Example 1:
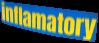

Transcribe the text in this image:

inflamatory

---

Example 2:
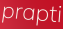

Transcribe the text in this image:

prapti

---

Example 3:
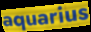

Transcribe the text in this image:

aquarius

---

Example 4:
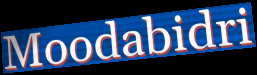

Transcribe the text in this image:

Moodabidri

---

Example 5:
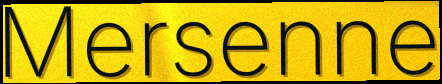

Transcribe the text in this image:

Mersenne